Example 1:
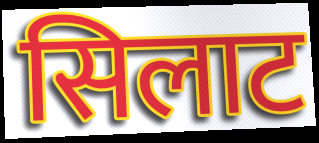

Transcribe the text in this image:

सिलाट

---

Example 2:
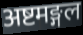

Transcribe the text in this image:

अष्टमङ्गल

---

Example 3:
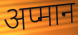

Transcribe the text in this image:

अप्मान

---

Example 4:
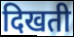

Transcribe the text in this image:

दिखती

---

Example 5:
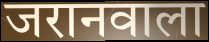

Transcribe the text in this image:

जरानवाला